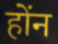
होंन